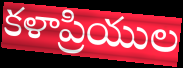
కళాప్రియుల